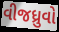
વીજધ્રુવો